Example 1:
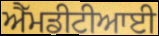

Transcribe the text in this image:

ਐੱਮਡੀਟੀਆਈ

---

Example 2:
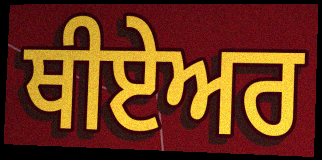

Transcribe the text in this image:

ਥੀਏਅਰ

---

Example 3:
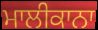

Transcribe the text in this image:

ਮਾਲੀਕਾਨਾ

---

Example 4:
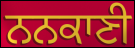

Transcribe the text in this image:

ਨਨਕਾਣੀ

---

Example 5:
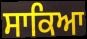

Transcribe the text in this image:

ਸਾਕਿਆ